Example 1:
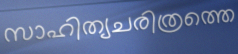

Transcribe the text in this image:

സാഹിത്യചരിത്രത്തെ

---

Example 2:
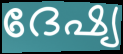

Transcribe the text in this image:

ദേഷ്യ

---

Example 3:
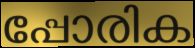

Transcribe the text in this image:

പ്പോരിക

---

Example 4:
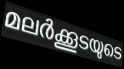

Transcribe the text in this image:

മലർക്കൂടയുടെ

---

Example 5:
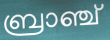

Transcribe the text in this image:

ബ്രാഞ്ച്